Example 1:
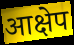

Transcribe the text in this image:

आक्षेप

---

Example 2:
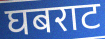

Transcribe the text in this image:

घबराट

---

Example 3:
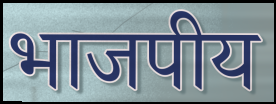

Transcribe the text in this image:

भाजपीय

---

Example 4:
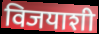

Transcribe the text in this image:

विजयाशी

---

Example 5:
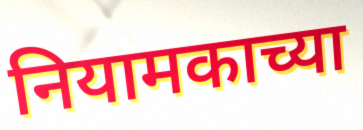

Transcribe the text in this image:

नियामकाच्या